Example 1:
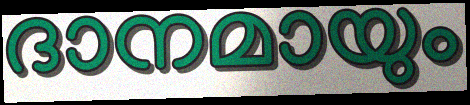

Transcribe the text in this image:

ദാനമായും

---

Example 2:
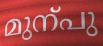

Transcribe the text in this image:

മുന്പു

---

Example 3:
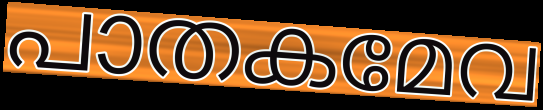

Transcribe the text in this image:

പാതകമേവ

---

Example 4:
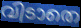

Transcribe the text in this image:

വിടാതെ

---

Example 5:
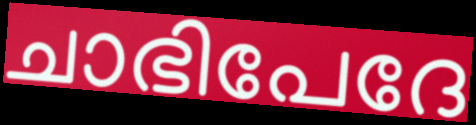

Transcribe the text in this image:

ചാഭിപേദേ